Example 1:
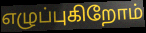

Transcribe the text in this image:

எழுப்புகிறோம்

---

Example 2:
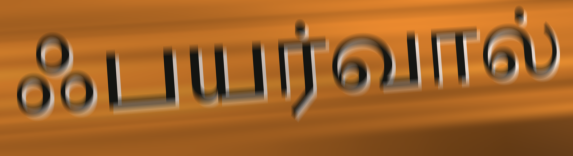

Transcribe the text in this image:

ஃபயர்வால்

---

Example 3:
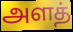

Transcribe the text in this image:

அளத்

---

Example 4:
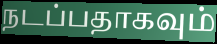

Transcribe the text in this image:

நடப்பதாகவும்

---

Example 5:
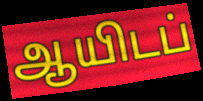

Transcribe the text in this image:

ஆயிடப்